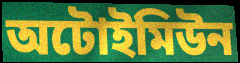
অটোইমিউন